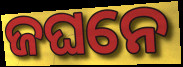
ଜଘନେ